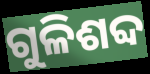
ଗୁଳିଶବ୍ଦ